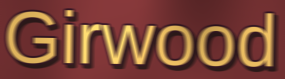
Girwood